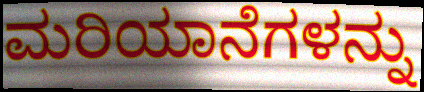
ಮರಿಯಾನೆಗಳನ್ನು